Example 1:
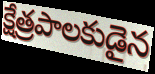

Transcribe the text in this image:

క్షేత్రపాలకుడైన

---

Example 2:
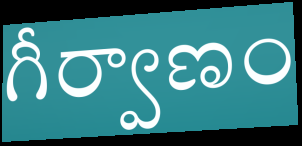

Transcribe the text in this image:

గీర్వాణం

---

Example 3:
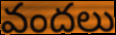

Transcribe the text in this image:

వందలు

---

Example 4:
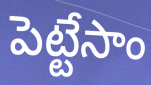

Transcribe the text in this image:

పెట్టేసాం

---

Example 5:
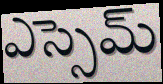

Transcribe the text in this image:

ఎస్సెమ్